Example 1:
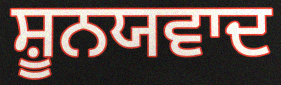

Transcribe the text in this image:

ਸ਼ੂਨਯਵਾਦ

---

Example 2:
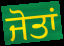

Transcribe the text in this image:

ਜੋਤਾਂ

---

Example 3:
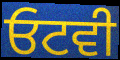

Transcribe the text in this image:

ਓਟਵੀ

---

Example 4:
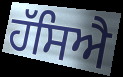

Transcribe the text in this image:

ਹੱਸਿਐ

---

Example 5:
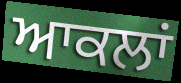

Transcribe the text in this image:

ਆਕਲਾਂ